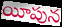
యీపున